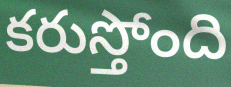
కరుస్తోంది